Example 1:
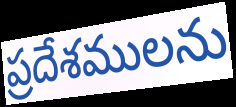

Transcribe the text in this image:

ప్రదేశములను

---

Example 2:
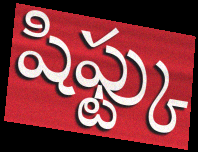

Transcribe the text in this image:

షిఫ్ట్కు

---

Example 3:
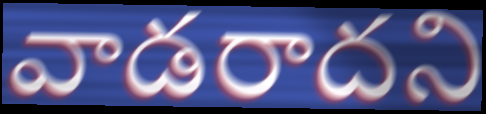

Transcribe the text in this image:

వాడరాదని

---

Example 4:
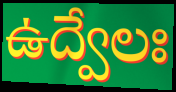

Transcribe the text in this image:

ఉద్వేలః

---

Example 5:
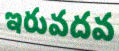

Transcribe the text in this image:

ఇరువదవ